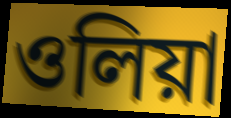
ওলিয়া